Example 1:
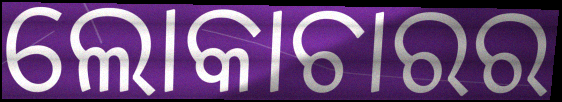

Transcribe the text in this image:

ଲୋକାଚାରର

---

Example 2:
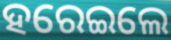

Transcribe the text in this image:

ହରେଇଲେ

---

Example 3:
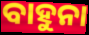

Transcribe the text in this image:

ବାହୁନା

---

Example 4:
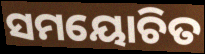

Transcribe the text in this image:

ସମୟୋଚିତ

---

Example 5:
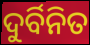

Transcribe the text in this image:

ଦୁର୍ବିନିତ